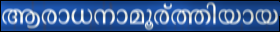
ആരാധനാമൂര്ത്തിയായ